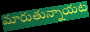
మారుతున్నాయట